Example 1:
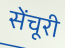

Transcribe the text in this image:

सेंचूरी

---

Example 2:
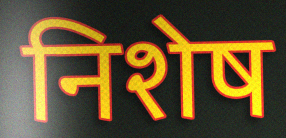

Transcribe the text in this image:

निशेष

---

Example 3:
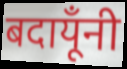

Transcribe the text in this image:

बदायूँनी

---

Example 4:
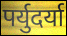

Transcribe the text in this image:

पर्युदर्या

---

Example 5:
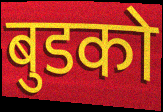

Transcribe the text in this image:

बुडको